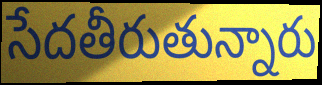
సేదతీరుతున్నారు